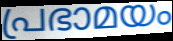
പ്രഭാമയം